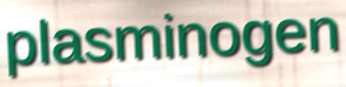
plasminogen